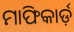
ମାଫିକାର୍ଡ଼